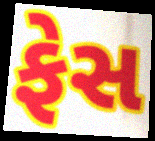
ફેસ